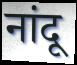
नांदू